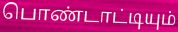
பொண்டாட்டியும்